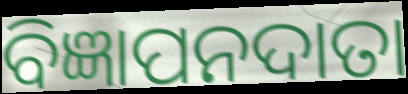
ବିଜ୍ଞାପନଦାତା